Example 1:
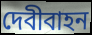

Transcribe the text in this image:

দেবীবাহন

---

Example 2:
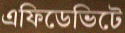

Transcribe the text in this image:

এফিডেভিটে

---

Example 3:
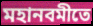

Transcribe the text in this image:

মহানবমীতে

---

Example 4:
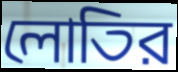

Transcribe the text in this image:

লোতির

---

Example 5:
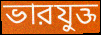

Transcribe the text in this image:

ভারযুক্ত